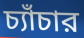
চ্যাঁচার